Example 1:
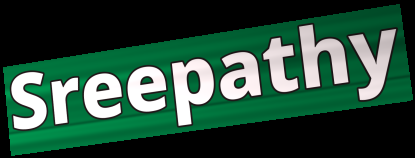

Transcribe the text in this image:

Sreepathy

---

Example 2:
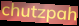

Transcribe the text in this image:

chutzpah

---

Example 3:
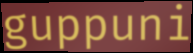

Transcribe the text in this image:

guppuni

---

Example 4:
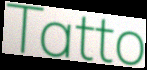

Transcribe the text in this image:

Tatto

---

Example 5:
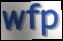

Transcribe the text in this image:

wfp